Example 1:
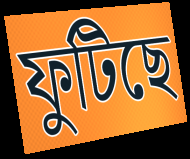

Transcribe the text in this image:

ফুটিছে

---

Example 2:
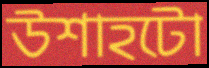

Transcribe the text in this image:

উশাহটো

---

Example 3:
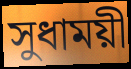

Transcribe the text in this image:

সুধাময়ী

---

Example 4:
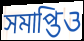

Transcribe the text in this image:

সমাপ্তিও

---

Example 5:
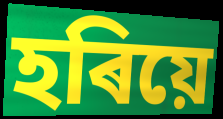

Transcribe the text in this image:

হৰিয়ে